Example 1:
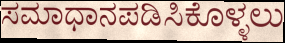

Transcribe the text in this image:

ಸಮಾಧಾನಪಡಿಸಿಕೊಳ್ಳಲು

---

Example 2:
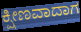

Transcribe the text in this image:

ಕ್ಷೀಣವಾದಾಗ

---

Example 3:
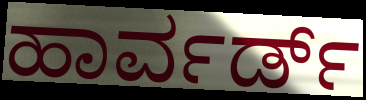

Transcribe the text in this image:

ಹಾರ್ವರ್ಡ್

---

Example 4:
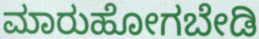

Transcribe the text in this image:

ಮಾರುಹೋಗಬೇಡಿ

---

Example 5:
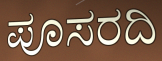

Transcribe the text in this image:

ಪೂಸರದಿ